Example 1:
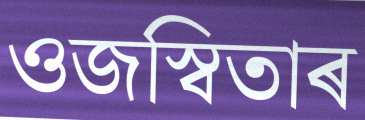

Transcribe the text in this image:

ওজস্বিতাৰ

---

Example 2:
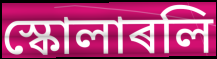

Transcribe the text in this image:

স্কোলাৰলি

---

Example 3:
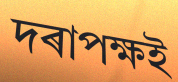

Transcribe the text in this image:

দৰাপক্ষই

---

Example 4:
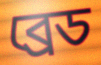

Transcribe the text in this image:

ব্ৰেড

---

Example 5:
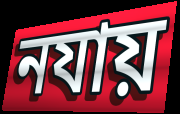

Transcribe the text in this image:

নযায়